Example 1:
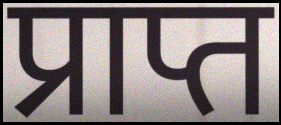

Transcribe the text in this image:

प्राप्त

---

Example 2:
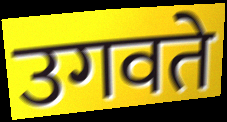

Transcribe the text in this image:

उगवते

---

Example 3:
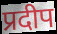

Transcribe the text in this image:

प्रदीप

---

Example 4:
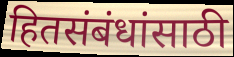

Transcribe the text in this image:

हितसंबंधांसाठी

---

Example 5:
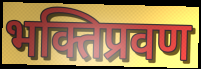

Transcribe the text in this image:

भक्तिप्रवण